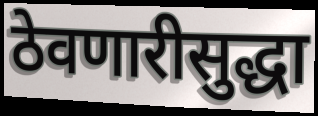
ठेवणारीसुद्धा